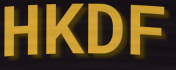
HKDF